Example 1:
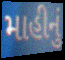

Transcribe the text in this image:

માહીનું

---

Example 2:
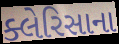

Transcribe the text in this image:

ક્લેરિસાના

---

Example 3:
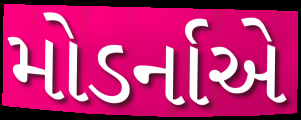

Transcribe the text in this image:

મોડર્નાએ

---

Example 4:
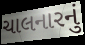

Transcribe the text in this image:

ચાલનારનું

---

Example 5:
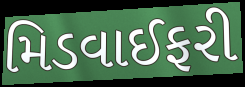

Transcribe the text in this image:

મિડવાઈફરી